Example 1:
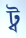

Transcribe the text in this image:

ট্ব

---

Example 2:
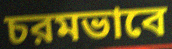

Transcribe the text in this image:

চরমভাবে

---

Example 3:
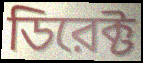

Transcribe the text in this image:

ডিরেক্ট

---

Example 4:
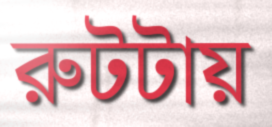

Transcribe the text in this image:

রুটটায়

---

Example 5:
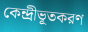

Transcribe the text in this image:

কেন্দ্রীভূতকরণ